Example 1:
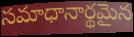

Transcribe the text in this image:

సమాధానార్థమైన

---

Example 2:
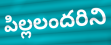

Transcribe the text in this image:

పిల్లలందరిని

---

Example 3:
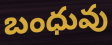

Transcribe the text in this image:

బంధువు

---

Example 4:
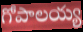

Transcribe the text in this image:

గోపాలయ్య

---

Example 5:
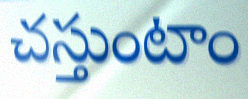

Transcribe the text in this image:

చస్తుంటాం